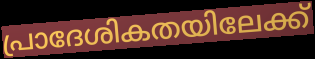
പ്രാദേശികതയിലേക്ക്